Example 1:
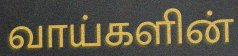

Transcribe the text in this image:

வாய்களின்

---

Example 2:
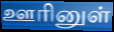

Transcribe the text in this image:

ஊரினுள்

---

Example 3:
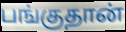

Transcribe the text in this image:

பங்குதான்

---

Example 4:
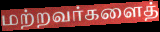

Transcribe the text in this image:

மற்றவர்களைத்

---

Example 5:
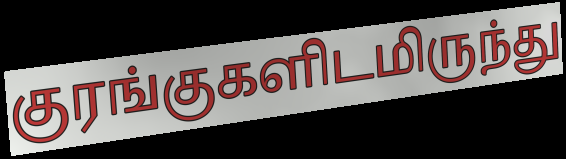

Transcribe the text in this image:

குரங்குகளிடமிருந்து